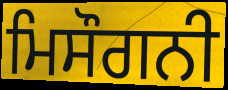
ਮਿਸੌਗਨੀ